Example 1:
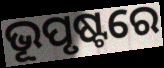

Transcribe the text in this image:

ଭୂପୃଷ୍ଟରେ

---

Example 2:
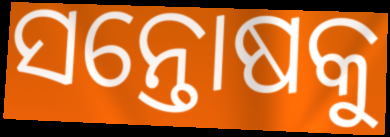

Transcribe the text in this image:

ସନ୍ତୋଷକୁ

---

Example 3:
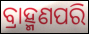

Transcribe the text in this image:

ବ୍ରାହ୍ମଣପରି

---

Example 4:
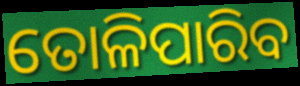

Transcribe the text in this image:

ତୋଳିପାରିବ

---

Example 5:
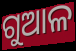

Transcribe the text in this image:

ଗୁଆଳ